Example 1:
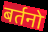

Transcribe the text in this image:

बर्तनो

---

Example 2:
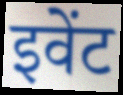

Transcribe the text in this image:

इवेंट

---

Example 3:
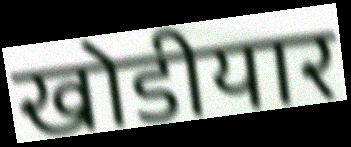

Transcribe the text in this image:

खोडीयार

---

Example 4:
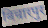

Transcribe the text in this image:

बिचारपुर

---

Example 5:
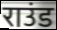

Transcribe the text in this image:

राउंड